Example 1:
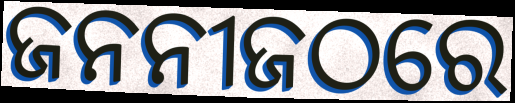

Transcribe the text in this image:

ଜନନୀଜଠରେ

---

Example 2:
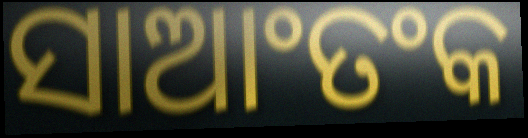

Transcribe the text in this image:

ସାଆଂତଂକ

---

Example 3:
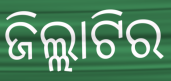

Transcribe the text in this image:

ଜିଲ୍ଲାଟିର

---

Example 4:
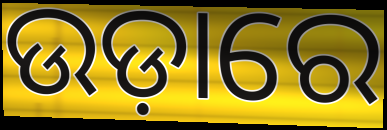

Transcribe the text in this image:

ଉଡ଼ାରେ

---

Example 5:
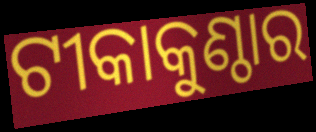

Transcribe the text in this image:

ଟୀକାକୁଣ୍ଠାର